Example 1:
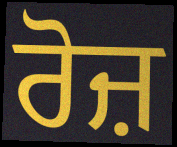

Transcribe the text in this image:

ਰੋਜ਼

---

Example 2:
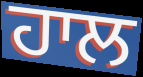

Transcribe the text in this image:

ਹਾਲ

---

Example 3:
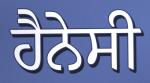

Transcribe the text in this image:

ਹੈਨੇਸੀ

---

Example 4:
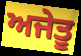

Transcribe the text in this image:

ਅਜੇਤੂ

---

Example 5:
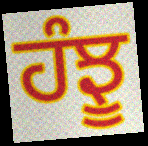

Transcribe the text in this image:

ਹੰਝੂ